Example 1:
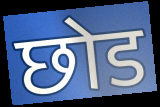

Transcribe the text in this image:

छोड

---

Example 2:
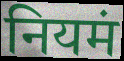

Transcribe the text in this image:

नियमं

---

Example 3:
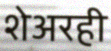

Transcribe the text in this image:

शेअरही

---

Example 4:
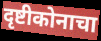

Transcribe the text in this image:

दृष्टीकोनाचा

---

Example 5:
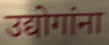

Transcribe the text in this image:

उद्योगांना